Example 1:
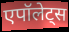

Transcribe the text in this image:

एपॉलेट्स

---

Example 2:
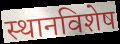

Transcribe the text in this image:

स्थानविशेष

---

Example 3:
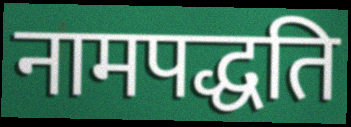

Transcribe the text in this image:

नामपद्धति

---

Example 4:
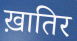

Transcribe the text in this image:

ख़ातिर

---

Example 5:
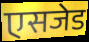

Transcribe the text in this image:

एसजेड